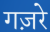
गज़रे